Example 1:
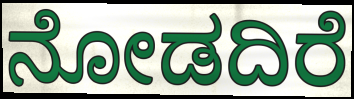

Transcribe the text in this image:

ನೋಡದಿರೆ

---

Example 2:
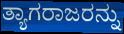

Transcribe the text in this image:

ತ್ಯಾಗರಾಜರನ್ನು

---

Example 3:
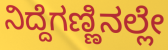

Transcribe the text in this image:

ನಿದ್ದೆಗಣ್ಣಿನಲ್ಲೇ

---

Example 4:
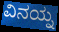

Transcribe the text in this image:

ವಿನಯ್ನ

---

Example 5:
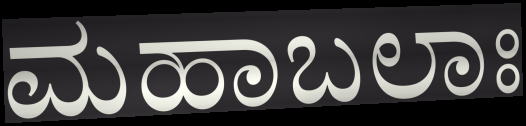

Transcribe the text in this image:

ಮಹಾಬಲಾಃ